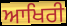
ਆਖਿਰੀ